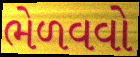
ભેળવવો